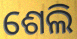
ଶେଲି